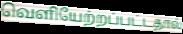
வெளியேற்றப்பட்டதால்